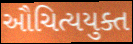
ઔચિત્યયુક્ત